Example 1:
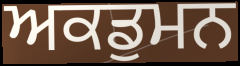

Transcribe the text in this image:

ਅਕਡੁਮਨ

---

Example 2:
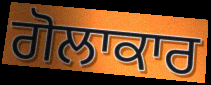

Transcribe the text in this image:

ਗੋਲਾਕਾਰ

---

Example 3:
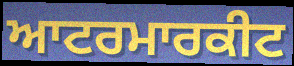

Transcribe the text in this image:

ਆਟਰਮਾਰਕੀਟ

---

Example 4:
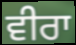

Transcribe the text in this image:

ਵੀਰਾ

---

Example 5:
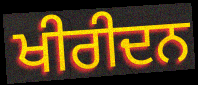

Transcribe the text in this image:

ਖੀਰੀਦਨ